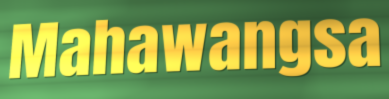
Mahawangsa